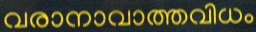
വരാനാവാത്തവിധം